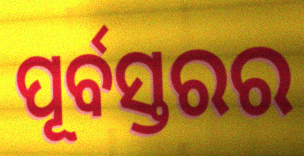
ପୂର୍ବସ୍ତରର